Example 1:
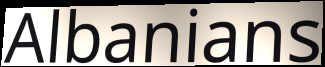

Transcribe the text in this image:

Albanians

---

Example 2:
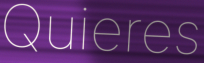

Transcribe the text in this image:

Quieres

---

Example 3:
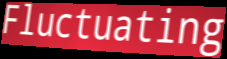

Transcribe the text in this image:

Fluctuating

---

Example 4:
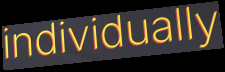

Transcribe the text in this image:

individually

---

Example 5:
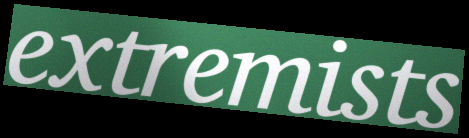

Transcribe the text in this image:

extremists